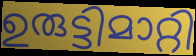
ഉരുട്ടിമാറ്റി